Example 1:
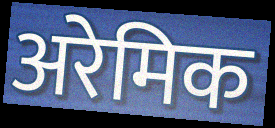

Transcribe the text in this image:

अरेमिक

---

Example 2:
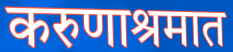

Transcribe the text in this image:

करुणाश्रमात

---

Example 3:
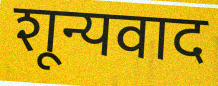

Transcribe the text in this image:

शून्यवाद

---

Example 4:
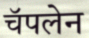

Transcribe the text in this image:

चॅपलेन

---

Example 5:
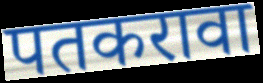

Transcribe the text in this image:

पतकरावा